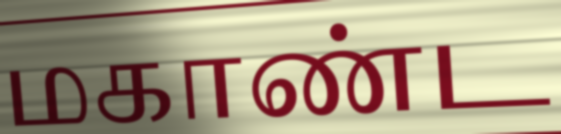
மகாண்ட